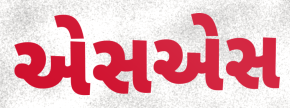
એસએસ